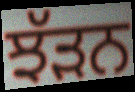
ਝੱੜਨ